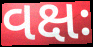
વક્ષઃ